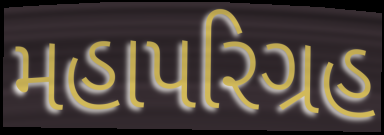
મહાપરિગ્રહ